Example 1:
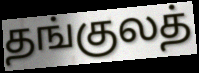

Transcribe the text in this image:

தங்குலத்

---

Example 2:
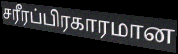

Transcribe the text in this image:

சரீரப்பிரகாரமான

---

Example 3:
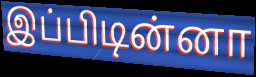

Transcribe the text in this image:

இப்பிடின்னா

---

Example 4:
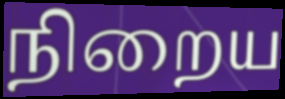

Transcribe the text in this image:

நிறைய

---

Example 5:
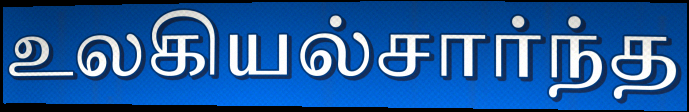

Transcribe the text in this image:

உலகியல்சார்ந்த